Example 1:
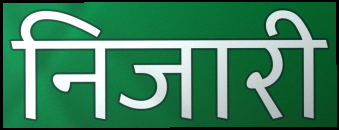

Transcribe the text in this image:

निजारी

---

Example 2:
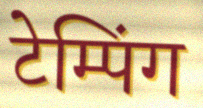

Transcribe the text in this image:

टेम्पिंग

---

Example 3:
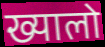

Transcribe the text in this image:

ख्यालो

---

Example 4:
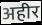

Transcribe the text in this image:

अहीर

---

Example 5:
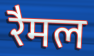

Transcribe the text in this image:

रैमल